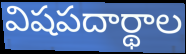
విషపదార్థాల